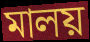
মালয়